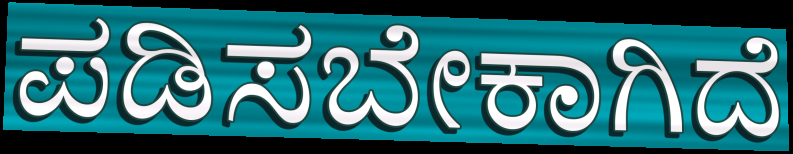
ಪಡಿಸಬೇಕಾಗಿದೆ